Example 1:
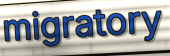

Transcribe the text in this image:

migratory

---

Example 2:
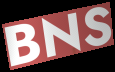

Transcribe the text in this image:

BNS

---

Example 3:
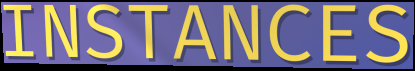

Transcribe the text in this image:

INSTANCES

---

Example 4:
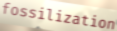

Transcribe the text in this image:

fossilization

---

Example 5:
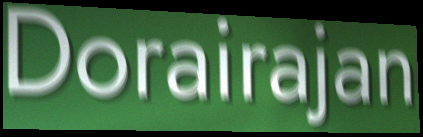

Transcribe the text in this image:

Dorairajan